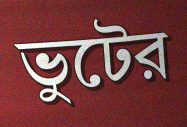
ভুটের